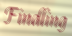
Findling